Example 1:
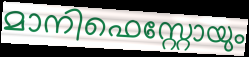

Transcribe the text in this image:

മാനിഫെസ്റ്റോയും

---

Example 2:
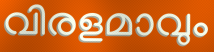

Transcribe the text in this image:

വിരളമാവും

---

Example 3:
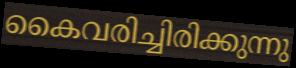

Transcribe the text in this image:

കൈവരിച്ചിരിക്കുന്നു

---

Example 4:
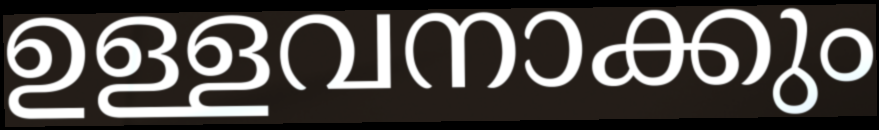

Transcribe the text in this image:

ഉള്ളവനാക്കും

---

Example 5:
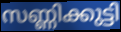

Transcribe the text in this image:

സണ്ണിക്കുട്ടി